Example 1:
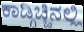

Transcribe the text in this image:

ಕಾಡ್ಗಿಚ್ಚಿನಲ್ಲಿ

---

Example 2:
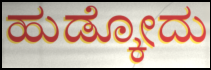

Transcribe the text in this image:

ಹುಡ್ಕೋದು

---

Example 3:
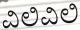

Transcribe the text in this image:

ವಿಲಿವಿಲಿ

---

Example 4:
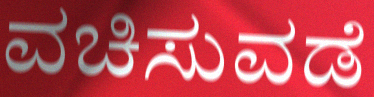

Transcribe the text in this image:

ವಚಿಸುವಡೆ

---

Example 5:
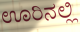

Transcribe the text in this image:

ಊರಿನಲ್ಲಿ